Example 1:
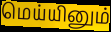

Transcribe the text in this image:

மெய்யினும்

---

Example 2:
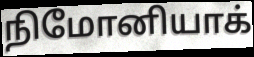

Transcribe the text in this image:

நிமோனியாக்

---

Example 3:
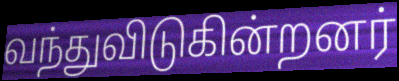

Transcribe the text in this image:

வந்துவிடுகின்றனர்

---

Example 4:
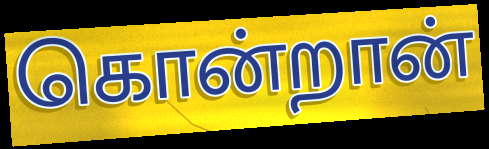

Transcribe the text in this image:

கொன்றான்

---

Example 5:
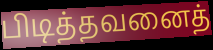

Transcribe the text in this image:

பிடித்தவனைத்